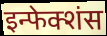
इन्फेक्शंस